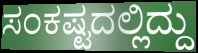
ಸಂಕಷ್ಟದಲ್ಲಿದ್ದು